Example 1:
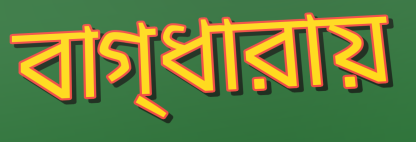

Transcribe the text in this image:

বাগ্‌ধারায়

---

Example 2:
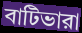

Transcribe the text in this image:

বাটিভারা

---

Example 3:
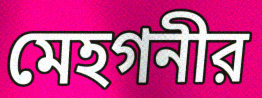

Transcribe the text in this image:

মেহগনীর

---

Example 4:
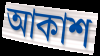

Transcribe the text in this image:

আকাশ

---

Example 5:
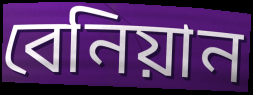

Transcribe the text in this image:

বেনিয়ান